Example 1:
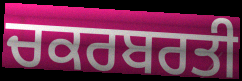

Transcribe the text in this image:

ਚਕਰਬਰਤੀ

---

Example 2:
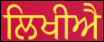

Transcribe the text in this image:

ਲਿਖੀਐ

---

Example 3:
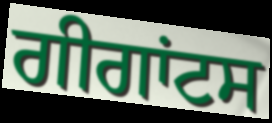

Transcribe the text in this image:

ਗੀਗਾਂਟਸ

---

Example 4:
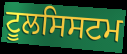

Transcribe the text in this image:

ਟੂਲਸਿਸਟਮ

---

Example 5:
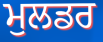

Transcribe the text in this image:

ਮੁਲਡਰ